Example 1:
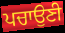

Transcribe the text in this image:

ਪਚਾਉਣੀ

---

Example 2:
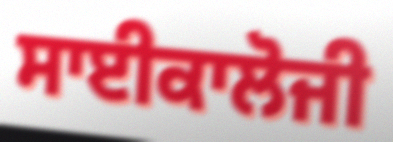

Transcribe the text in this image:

ਸਾਈਕਾਲੋਜੀ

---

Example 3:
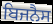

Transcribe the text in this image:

ਬਿਜਨੈਸ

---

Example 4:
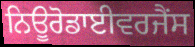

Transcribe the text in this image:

ਨਿਊਰੋਡਾਈਵਰਜੈਂਸ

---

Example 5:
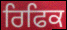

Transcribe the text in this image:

ਰਿਫਿਕ